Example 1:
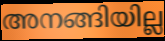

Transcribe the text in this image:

അനങ്ങിയില്ല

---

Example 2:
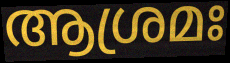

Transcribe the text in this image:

ആശ്രമഃ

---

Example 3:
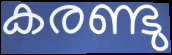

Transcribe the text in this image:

കരണ്ടു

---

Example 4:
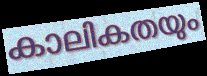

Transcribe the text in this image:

കാലികതയും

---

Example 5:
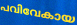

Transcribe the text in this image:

പവിവേകായ